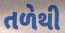
તળેથી